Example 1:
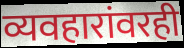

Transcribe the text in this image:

व्यवहारांवरही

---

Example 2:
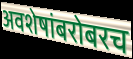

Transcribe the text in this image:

अवशेषांबरोबरच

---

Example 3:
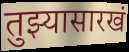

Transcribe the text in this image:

तुझ्यासारखं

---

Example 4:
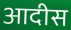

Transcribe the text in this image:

आदीस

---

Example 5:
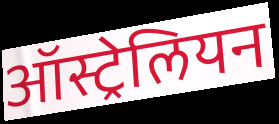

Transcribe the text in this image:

ऑस्ट्रेलियन